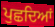
ਪੁਛਦਿਆਂ